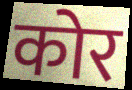
कोर